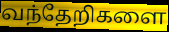
வந்தேறிகளை